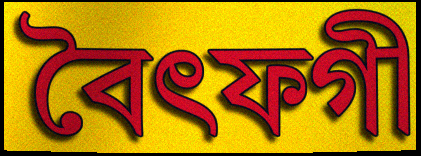
বৈৎফগী